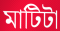
মাটিটা